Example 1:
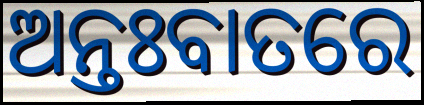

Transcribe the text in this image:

ଅନ୍ତଃବାତରେ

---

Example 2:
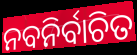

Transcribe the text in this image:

ନବନିର୍ବାଚିତ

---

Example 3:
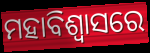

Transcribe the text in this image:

ମହାବିଶ୍ୱାସରେ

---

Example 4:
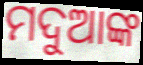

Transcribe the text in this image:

ମଦୁଆଙ୍କ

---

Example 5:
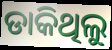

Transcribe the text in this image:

ଡାକିଥିଲୁ